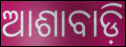
ଆଶାବାଡ଼ି